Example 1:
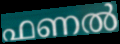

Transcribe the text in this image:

ഫണൽ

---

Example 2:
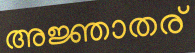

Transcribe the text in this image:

അജ്ഞാതര്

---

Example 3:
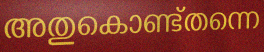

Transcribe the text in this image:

അതുകൊണ്ട്തന്നെ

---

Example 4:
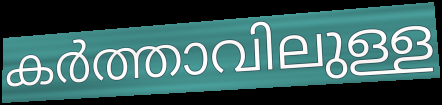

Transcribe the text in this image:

കർത്താവിലുള്ള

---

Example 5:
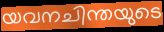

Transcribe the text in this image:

യവനചിന്തയുടെ